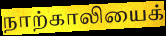
நாற்காலியைக்